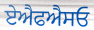
ਏਐਫਐਸਓ